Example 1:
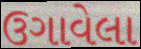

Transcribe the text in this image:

ઉગાવેલા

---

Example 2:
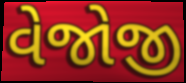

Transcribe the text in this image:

વેજોજી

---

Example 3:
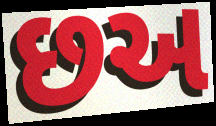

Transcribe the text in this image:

છઅ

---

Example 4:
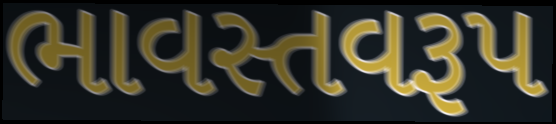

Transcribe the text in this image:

ભાવસ્તવરૂપ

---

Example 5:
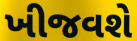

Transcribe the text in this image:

ખીજવશે